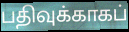
பதிவுக்காகப்